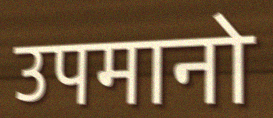
उपमानो